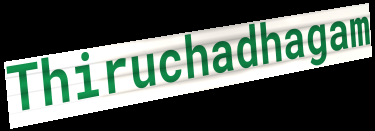
Thiruchadhagam